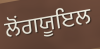
ਲੋਂਗਯੂਇਲ